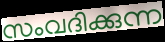
സംവദിക്കുന്ന